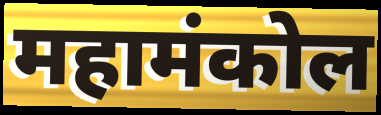
महामंकोल